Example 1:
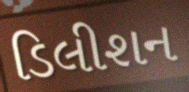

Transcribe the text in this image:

ડિલીશન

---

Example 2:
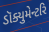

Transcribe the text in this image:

ડૉક્યુમેન્ટરિ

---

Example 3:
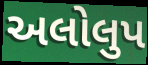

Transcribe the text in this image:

અલોલુપ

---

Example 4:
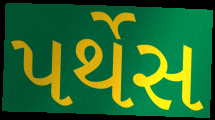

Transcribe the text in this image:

પર્થેસ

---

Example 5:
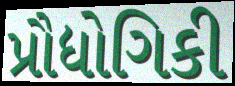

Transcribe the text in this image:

પ્રૌદ્યોગિકી